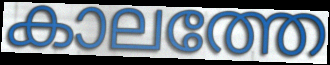
കാലത്തേ